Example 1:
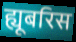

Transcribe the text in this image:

ह्यूबरिस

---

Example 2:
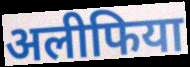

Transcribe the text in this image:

अलीफिया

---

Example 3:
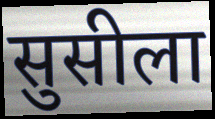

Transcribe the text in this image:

सुसीला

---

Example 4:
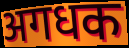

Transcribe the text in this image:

अगधक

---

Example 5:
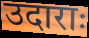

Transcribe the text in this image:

उदाराः